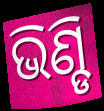
ଭିଣ୍ଡି